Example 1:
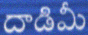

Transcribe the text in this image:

దాడిమీ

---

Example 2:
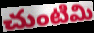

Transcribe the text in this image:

చుంటిమి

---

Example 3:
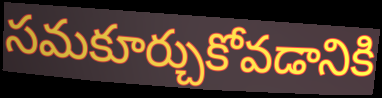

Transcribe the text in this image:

సమకూర్చుకోవడానికి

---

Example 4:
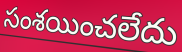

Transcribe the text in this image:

సంశయించలేదు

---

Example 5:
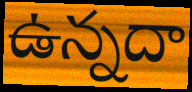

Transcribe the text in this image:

ఉన్నదా